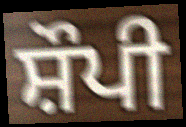
ਸ਼ੌਪੀ